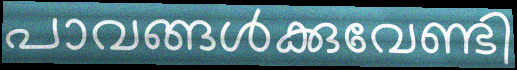
പാവങ്ങൾക്കുവേണ്ടി